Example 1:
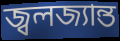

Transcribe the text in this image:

জ্বলজ্যান্ত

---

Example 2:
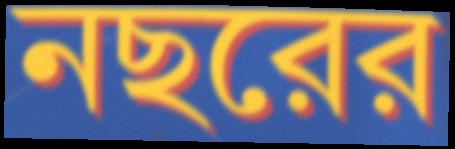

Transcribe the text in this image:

নছরের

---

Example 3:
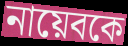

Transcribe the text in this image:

নায়েবকে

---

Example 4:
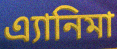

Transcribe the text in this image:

এ্যানিমা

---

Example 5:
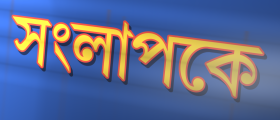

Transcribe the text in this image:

সংলাপকে